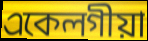
একেলগীয়া